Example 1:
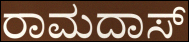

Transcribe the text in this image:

ರಾಮದಾಸ್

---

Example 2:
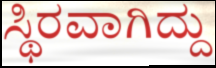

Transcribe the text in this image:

ಸ್ಥಿರವಾಗಿದ್ದು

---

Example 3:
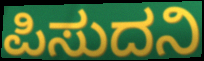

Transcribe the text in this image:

ಪಿಸುದನಿ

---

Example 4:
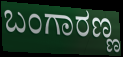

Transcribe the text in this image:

ಬಂಗಾರಣ್ಣ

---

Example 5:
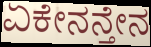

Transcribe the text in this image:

ಏಕೇನನ್ತೇನ